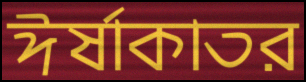
ঈর্ষাকাতর